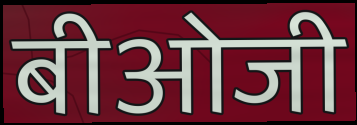
बीओजी